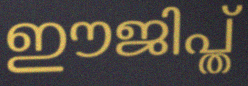
ഈജിപ്ത്